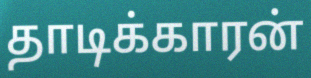
தாடிக்காரன்